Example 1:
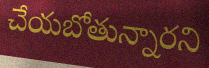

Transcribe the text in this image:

చేయబోతున్నారని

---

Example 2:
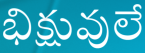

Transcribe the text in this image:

భిక్షువులే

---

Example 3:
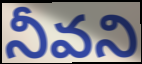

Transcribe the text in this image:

నీవని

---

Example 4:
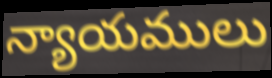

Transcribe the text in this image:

న్యాయములు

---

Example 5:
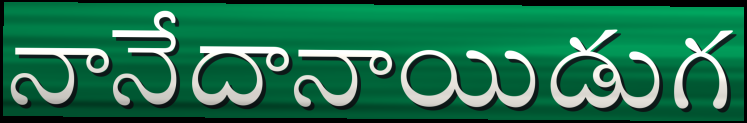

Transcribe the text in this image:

నానేదానాయిడుగ